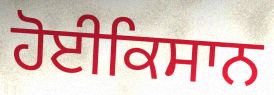
ਹੋਈਕਿਸਾਨ